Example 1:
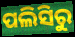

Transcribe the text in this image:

ପଲିସିରୁ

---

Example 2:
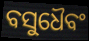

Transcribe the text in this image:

ବସୁଧୈବଂ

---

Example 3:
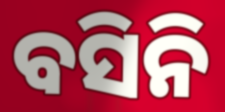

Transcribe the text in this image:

ବସିନି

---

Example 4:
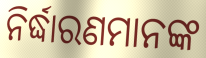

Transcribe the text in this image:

ନିର୍ଦ୍ଧାରଣମାନଙ୍କ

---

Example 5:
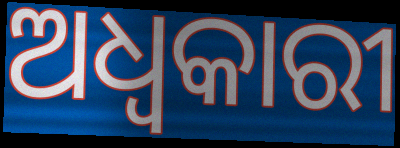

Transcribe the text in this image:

ଅଧ୍ବକାରୀ